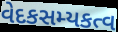
વેદકસમ્યકત્વ